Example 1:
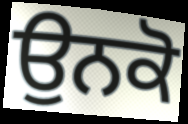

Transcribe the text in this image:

ਉਨਕੋ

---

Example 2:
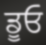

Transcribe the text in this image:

ਡੂਓ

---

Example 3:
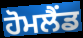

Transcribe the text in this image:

ਹੋਮਲੈਂਡ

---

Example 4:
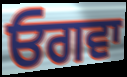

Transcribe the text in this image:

ਓਗਵਾ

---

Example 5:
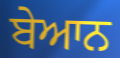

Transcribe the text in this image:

ਬੇਆਨ